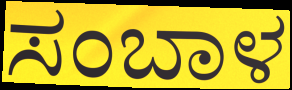
ಸಂಬಾಳ